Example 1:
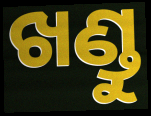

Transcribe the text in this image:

ଖଣ୍ଡୁ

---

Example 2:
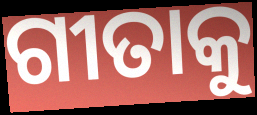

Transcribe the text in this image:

ଗୀତାକୁ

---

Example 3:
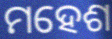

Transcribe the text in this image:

ମହେଶ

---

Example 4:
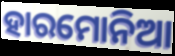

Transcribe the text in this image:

ହାରମୋନିଆ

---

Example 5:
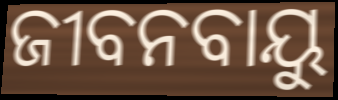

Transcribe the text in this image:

ଜୀବନବାୟୁ